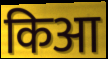
किआ